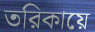
তরিকায়ে